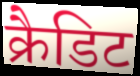
क्रैडिट